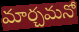
మార్చమనో